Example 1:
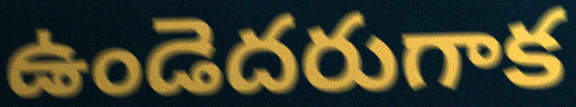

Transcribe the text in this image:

ఉండెదరుగాక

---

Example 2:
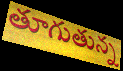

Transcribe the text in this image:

తూగుతున్న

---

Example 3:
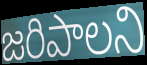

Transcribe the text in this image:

జరిపాలని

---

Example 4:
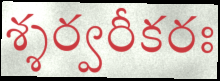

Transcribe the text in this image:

శ్శర్వరీకరః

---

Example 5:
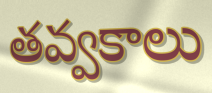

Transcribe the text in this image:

తవ్వకాలు